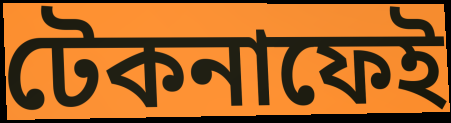
টেকনাফেই